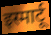
इस्मार्टू